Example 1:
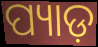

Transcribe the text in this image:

ପ୍ୟାଡ଼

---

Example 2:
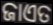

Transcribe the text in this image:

ଜାଏତ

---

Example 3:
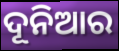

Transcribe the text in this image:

ଦୂନିଆର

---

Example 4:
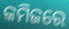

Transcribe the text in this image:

କମିଜରେ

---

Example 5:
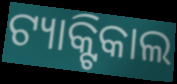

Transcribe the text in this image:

ଟ୍ୟାକ୍ଟିକାଲ